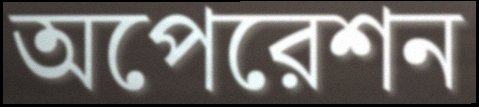
অপেরেশন